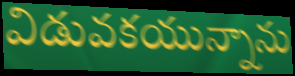
విడువకయున్నాను